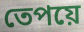
তেপয়ে